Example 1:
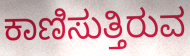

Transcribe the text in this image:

ಕಾಣಿಸುತ್ತಿರುವ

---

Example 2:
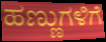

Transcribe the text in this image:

ಹಣ್ಣುಗಳಿಗೆ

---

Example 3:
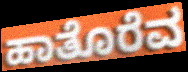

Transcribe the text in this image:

ಹಾತೊರೆವ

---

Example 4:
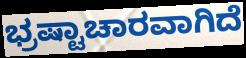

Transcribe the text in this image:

ಭ್ರಷ್ಟಾಚಾರವಾಗಿದೆ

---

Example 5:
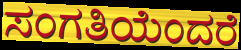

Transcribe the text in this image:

ಸಂಗತಿಯೆಂದರೆ